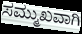
ಸಮ್ಮುಖವಾಗಿ